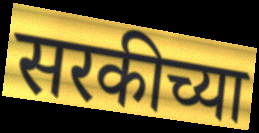
सरकीच्या